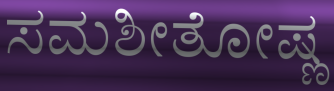
ಸಮಶೀತೋಷ್ಣ